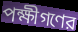
পক্ষীগণের